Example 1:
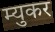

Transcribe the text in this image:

म्युकर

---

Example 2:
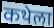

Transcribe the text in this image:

कथेला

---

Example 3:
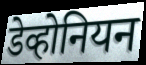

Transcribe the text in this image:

डेव्होनियन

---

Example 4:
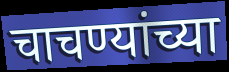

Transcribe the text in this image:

चाचण्यांच्या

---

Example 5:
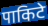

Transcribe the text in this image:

पाकिटे